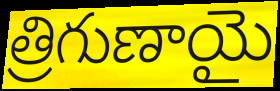
త్రిగుణాయై